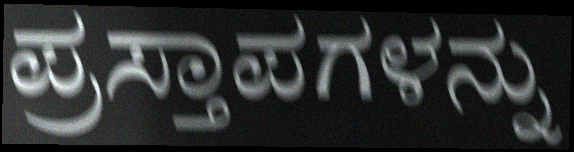
ಪ್ರಸ್ತಾಪಗಳನ್ನು